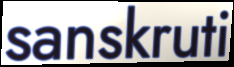
sanskruti